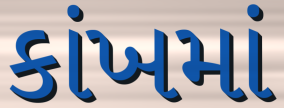
કાંખમાં